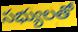
సభ్యులతో